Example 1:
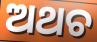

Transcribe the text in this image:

ଅଥଚ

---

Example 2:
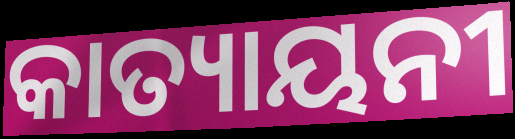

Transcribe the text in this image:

କାତ୍ୟାୟନୀ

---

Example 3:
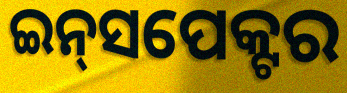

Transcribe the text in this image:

ଇନ୍‍ସପେକ୍ଟର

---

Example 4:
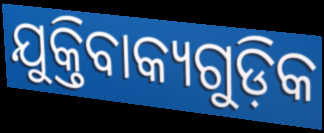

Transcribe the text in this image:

ଯୁକ୍ତିବାକ୍ୟଗୁଡ଼ିକ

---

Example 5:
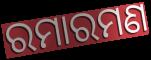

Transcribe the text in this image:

ରମାରମଣ